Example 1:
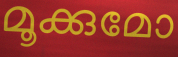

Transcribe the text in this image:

മൂക്കുമോ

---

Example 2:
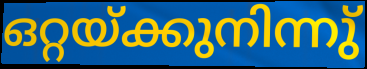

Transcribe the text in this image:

ഒറ്റയ്ക്കുനിന്നു്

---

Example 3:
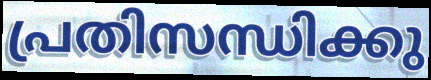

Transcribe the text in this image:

പ്രതിസന്ധിക്കു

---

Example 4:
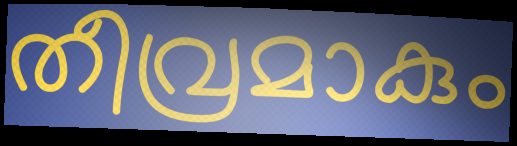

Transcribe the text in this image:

തീവ്രമാകും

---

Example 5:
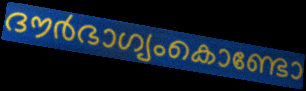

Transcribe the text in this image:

ദൗർഭാഗ്യംകൊണ്ടോ